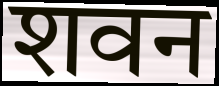
शवन